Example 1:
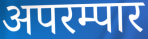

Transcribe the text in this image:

अपरम्पार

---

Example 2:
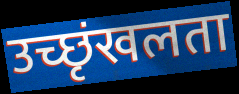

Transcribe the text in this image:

उच्छृंखलता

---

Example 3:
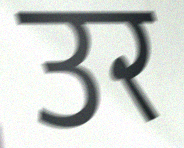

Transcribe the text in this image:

उर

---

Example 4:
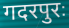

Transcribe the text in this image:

गदरपुरः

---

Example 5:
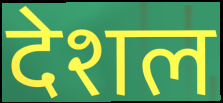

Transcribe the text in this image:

देशल